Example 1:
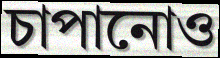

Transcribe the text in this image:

চাপানোও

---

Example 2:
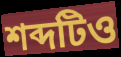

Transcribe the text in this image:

শব্দটিও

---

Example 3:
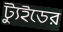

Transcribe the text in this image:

ট্যুইডের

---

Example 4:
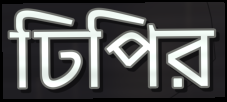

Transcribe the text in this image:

ঢিপির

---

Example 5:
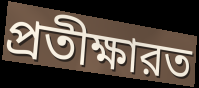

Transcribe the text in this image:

প্রতীক্ষারত